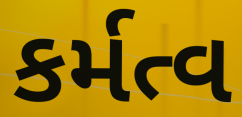
કર્મત્વ